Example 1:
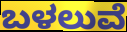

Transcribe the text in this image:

ಬಳಲುವೆ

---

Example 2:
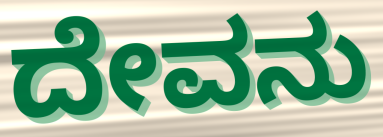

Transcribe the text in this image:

ದೇವನು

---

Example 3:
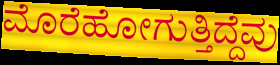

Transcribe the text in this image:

ಮೊರೆಹೋಗುತ್ತಿದ್ದೆವು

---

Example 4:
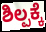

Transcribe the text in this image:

ಶಿಲ್ಪಕ್ಕೆ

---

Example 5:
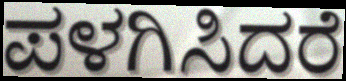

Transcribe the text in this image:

ಪಳಗಿಸಿದರೆ